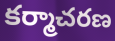
కర్మాచరణ